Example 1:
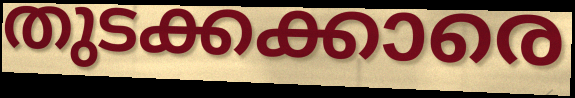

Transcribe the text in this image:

തുടക്കക്കാരെ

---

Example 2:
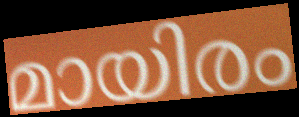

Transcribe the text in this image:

മായിരം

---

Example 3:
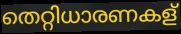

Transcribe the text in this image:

തെറ്റിധാരണകള്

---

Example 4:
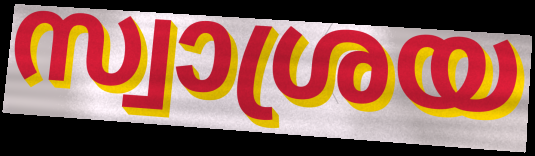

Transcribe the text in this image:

സ്വാശ്രയ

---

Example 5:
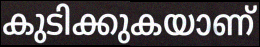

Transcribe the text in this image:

കുടിക്കുകയാണ്